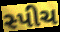
સ્પીચ